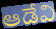
ఆడేవి